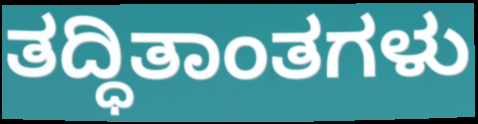
ತದ್ಧಿತಾಂತಗಳು